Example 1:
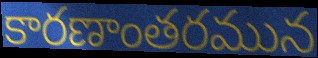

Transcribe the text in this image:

కారణాంతరమున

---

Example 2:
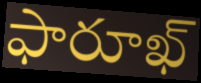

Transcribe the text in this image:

ఫారూఖ్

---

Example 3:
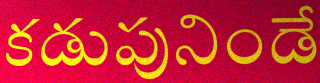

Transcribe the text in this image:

కడుపునిండే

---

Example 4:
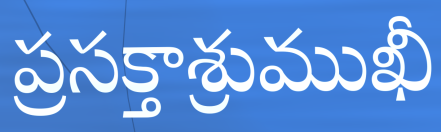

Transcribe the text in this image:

ప్రసక్తాశ్రుముఖీ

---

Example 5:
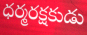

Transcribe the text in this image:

ధర్మరక్షకుడు